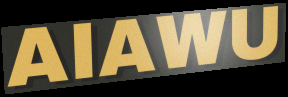
AIAWU